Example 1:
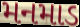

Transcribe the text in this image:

મનમાડ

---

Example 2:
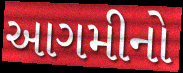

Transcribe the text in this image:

આગમીનો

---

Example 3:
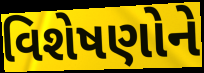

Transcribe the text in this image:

વિશેષણોને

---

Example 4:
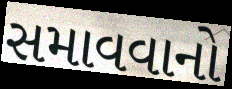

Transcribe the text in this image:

સમાવવાનો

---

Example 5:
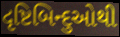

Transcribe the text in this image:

દૃષ્ટિબિન્દુઓથી